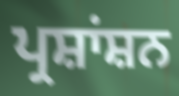
ਪ੍ਰਸ਼ਾਂਸ਼ਨ